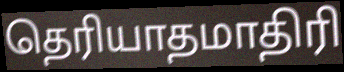
தெரியாதமாதிரி